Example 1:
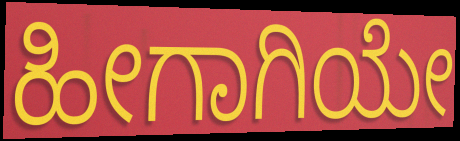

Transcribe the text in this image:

ಹೀಗಾಗಿಯೇ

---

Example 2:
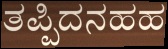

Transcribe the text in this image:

ತಪ್ಪಿದನಹಹ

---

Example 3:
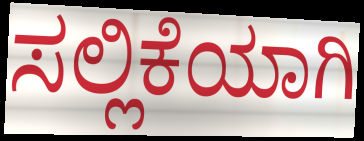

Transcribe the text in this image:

ಸಲ್ಲಿಕೆಯಾಗಿ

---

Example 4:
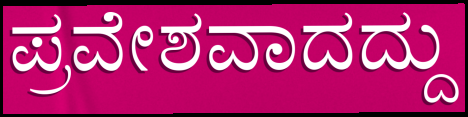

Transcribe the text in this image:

ಪ್ರವೇಶವಾದದ್ದು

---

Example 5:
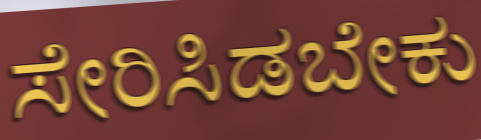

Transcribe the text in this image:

ಸೇರಿಸಿಡಬೇಕು